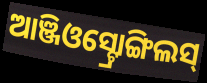
ଆଞ୍ଜିଓସ୍ଟ୍ରୋଙ୍ଗିଲସ୍